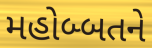
મહોબ્બતને